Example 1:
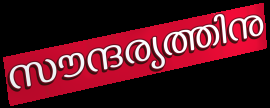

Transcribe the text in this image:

സൗന്ദര്യത്തിനു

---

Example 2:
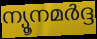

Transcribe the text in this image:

ന്യൂനമർദ്ദ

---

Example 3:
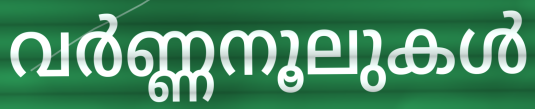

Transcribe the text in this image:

വർണ്ണനൂലുകൾ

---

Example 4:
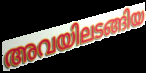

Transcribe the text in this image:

അവയിലടങ്ങിയ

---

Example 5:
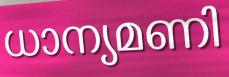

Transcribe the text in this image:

ധാന്യമണി